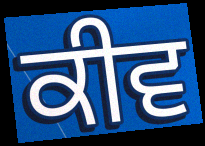
ਕੀਵ